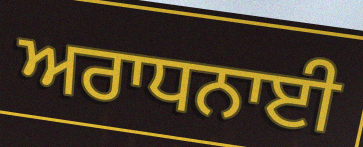
ਅਰਾਧਨਾਈ